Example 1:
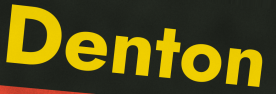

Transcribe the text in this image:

Denton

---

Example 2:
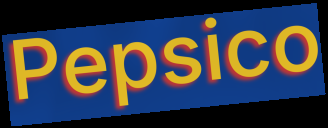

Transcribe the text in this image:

Pepsico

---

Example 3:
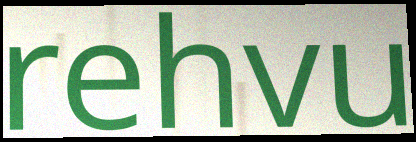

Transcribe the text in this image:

rehvu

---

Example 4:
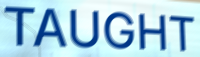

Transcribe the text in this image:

TAUGHT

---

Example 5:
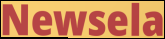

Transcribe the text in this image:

Newsela